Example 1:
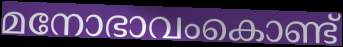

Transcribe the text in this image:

മനോഭാവംകൊണ്ട്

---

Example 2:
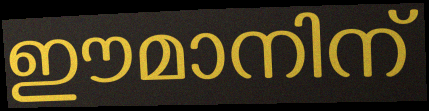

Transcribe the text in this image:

ഈമാനിന്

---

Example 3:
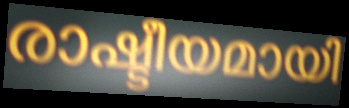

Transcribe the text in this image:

രാഷ്ടീയമായി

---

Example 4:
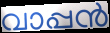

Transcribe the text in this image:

വാപ്പൻ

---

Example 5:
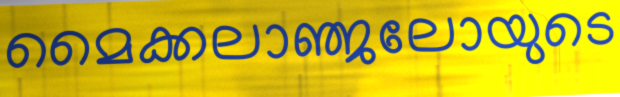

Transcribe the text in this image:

മൈക്കലാഞ്ജലോയുടെ